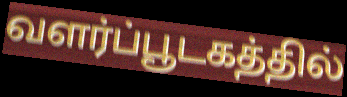
வளர்ப்பூடகத்தில்